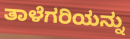
ತಾಳೆಗರಿಯನ್ನು